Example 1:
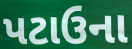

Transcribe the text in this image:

પટાઉના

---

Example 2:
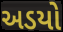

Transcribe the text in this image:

અડયો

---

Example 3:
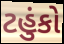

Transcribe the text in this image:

ટહુંકો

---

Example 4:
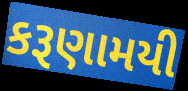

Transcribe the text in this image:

કરૂણામયી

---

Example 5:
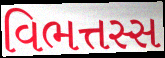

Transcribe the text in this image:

વિભત્તસ્સ